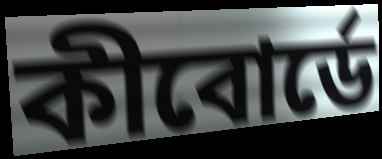
কীবোর্ডে